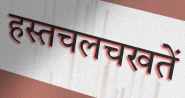
हस्तचलचखतें